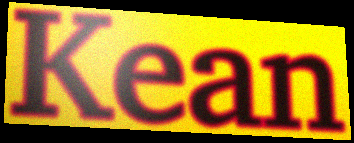
Kean